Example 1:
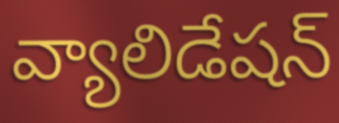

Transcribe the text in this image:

వ్యాలిడేషన్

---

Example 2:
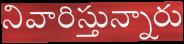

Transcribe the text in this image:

నివారిస్తున్నారు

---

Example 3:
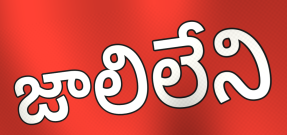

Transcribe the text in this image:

జాలిలేని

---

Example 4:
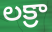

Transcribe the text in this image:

లక్రా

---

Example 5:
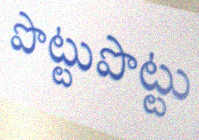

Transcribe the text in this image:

పొట్టుపొట్టు